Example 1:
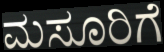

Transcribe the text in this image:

ಮಸೂರಿಗೆ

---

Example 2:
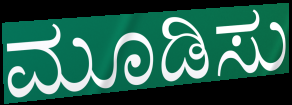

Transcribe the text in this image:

ಮೂಡಿಸು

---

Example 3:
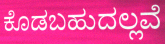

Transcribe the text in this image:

ಕೊಡಬಹುದಲ್ಲವೆ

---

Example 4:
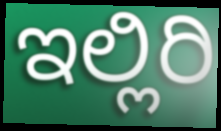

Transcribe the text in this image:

ಇಲ್ಲಿರಿ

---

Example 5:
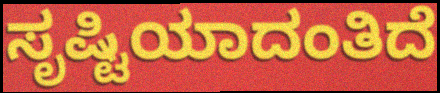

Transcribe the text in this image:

ಸೃಷ್ಟಿಯಾದಂತಿದೆ